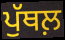
ਪੁੱਥਲ਼